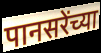
पानसरेंच्या